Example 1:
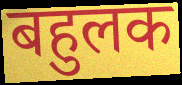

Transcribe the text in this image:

बहुलक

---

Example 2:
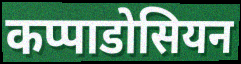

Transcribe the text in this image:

कप्पाडोसियन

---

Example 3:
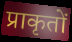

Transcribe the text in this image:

प्राकृतों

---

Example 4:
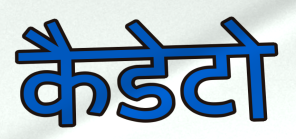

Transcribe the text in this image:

कैडेटो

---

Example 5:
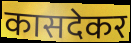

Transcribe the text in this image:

कासदेकर